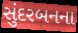
સુંદરબનના